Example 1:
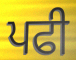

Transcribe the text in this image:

ਪਫੀ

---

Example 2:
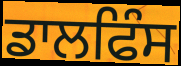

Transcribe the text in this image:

ਡਾਲਫਿੰਸ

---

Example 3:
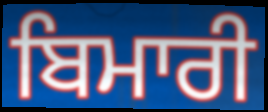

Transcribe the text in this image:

ਬਿਮਾਰੀ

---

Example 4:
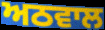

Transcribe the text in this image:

ਅਠਵਾਲ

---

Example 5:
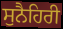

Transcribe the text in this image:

ਸੁਨੈਹਿਰੀ